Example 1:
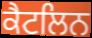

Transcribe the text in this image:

ਕੈਟਲਿਨ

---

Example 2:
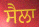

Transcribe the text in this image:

ਸੈਲਾ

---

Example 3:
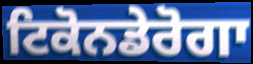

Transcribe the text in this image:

ਟਿਕੋਨਡੇਰੋਗਾ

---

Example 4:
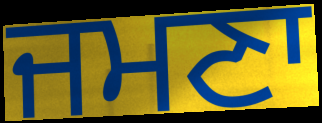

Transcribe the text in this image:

ਜਮਣਾ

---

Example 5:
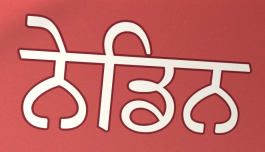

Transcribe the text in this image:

ਨੇਡਿਨ